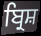
ਬ੍ਰਿਸ਼